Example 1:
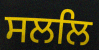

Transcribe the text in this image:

ਸਲਲਿ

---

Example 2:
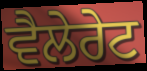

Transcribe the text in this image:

ਵੈਲੇਰੇਟ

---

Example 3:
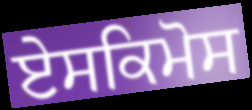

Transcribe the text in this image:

ਏਸਕਿਮੋਸ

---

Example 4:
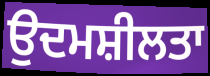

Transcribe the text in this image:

ਉਦਮਸ਼ੀਲਤਾ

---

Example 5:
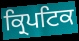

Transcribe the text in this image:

ਕ੍ਰਿਪਟਿਕ